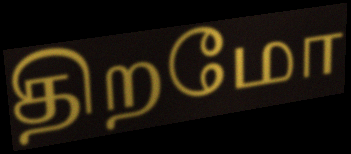
திறமோ